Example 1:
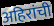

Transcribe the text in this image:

अहिरांची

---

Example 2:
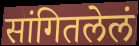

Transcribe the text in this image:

सांगितलेलं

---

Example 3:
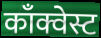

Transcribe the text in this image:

काँक्वेस्ट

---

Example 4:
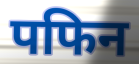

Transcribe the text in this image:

पफिन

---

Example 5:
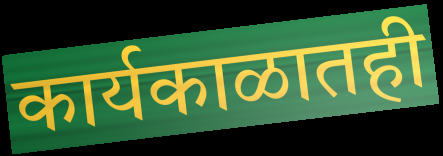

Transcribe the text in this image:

कार्यकाळातही